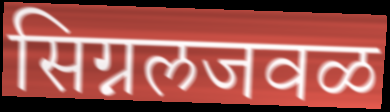
सिग्नलजवळ